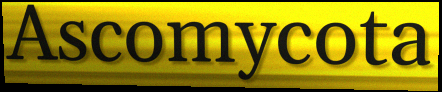
Ascomycota